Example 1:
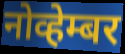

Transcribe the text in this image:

नोव्हेम्बर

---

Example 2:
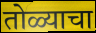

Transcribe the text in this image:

तोळ्याचा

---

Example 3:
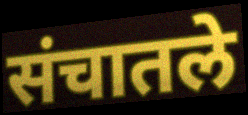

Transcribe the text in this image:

संचातले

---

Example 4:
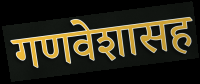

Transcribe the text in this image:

गणवेशासह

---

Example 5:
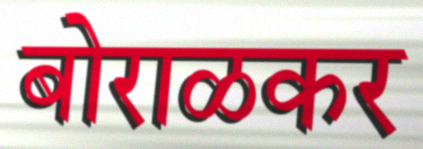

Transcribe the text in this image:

बोराळकर